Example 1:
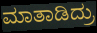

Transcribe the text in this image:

ಮಾತಾಡಿದ್ರು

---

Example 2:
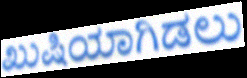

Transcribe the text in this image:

ಖುಷಿಯಾಗಿಡಲು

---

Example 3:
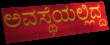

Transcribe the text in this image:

ಅವಸ್ಥೆಯಲ್ಲಿದ್ದ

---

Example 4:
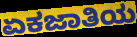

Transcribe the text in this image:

ಏಕಜಾತಿಯ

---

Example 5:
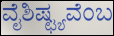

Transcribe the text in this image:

ವೈಶಿಷ್ಟ್ಯವೆಂಬ